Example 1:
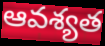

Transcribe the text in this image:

ఆవశ్యత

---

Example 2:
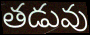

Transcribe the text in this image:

తడువు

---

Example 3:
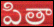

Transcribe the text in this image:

పితా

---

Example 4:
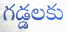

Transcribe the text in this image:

గడ్డలకు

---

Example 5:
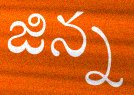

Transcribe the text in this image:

జిన్న